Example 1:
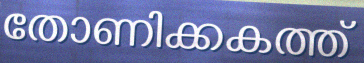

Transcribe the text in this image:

തോണിക്കകത്ത്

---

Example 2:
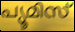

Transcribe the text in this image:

പ്യൂമിസ്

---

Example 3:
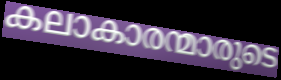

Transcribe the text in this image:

കലാകാരന്മാരുടെ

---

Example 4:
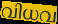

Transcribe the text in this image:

വിധവ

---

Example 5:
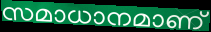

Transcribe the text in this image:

സമാധാനമാണ്